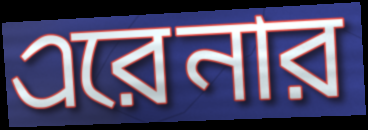
এরেনার